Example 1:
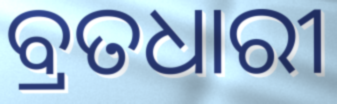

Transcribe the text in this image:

ବ୍ରତଧାରୀ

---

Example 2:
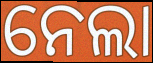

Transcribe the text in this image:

ନେଲା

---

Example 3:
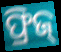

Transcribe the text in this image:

ଫ୍ରିଜ୍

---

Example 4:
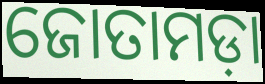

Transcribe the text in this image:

ଜୋତାମଡ଼ା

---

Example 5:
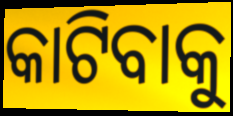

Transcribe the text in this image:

କାଟିବାକୁ